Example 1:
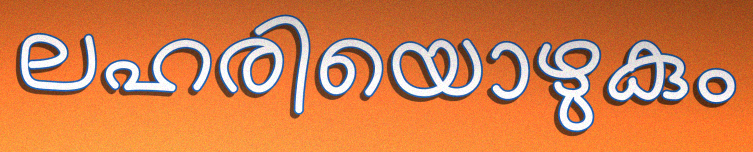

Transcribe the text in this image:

ലഹരിയൊഴുകും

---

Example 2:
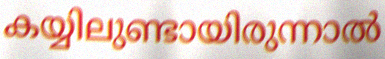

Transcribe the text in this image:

കയ്യിലുണ്ടായിരുന്നാൽ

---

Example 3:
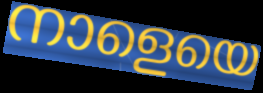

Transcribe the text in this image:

നാളെയെ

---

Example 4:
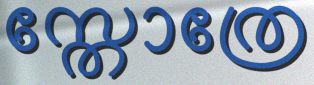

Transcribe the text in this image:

സ്തോത്രേ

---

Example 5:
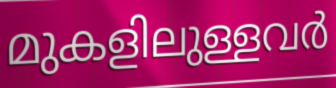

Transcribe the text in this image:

മുകളിലുള്ളവർ